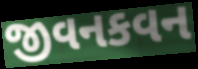
જીવનકવન